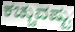
ಕಚ್ಚುವಷ್ಟು